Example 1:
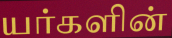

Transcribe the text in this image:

யர்களின்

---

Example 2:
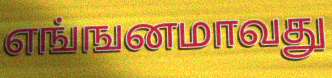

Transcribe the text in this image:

எங்ஙனமாவது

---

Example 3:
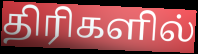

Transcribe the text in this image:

திரிகளில்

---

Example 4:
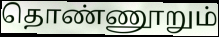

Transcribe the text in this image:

தொண்ணூறும்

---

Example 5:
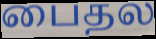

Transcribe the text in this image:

பைதல